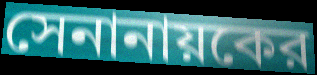
সেনানায়কের